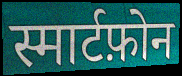
स्‍मार्टफ़ोन